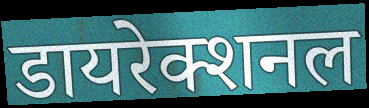
डायरेक्शनल